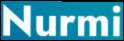
Nurmi